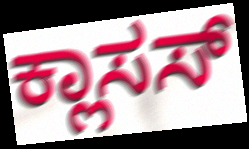
ಕ್ಲಾಸಸ್